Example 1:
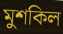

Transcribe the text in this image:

মুশকিল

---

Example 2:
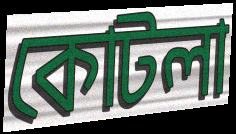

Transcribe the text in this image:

কোটলা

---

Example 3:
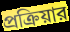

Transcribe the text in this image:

প্রক্রিয়ার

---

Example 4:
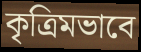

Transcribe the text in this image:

কৃত্রিমভাবে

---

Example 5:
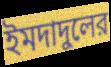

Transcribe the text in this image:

ইমদাদুলের